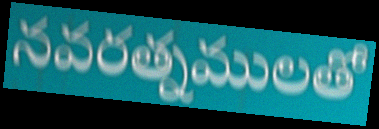
నవరత్నములతో